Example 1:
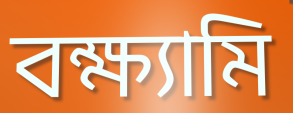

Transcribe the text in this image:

বক্ষ্যামি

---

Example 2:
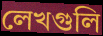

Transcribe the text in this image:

লেখগুলি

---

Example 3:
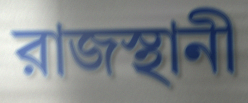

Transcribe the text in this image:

রাজস্থানী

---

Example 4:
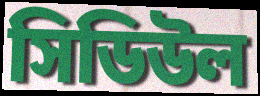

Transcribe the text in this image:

সিডিউল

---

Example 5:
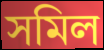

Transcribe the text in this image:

সমিল